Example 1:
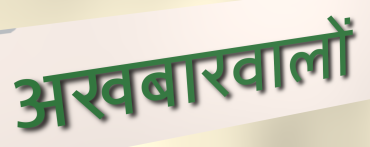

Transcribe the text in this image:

अखबारवालों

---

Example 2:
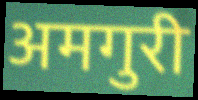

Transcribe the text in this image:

अमगुरी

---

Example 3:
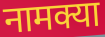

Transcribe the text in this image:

नामक्या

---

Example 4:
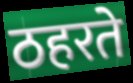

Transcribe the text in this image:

ठहरते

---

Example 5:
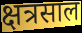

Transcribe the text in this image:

क्षत्रसाल